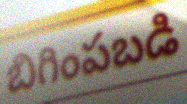
బిగింపబడి